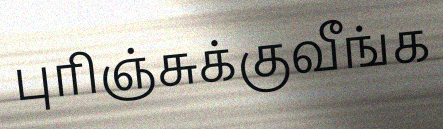
புரிஞ்சுக்குவீங்க